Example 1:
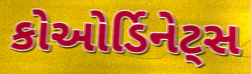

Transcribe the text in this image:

કોઓર્ડિનેટ્સ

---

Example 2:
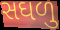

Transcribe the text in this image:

સઘળુ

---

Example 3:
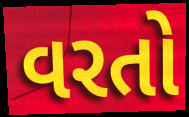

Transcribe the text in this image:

વરતો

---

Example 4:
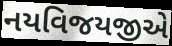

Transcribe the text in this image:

નયવિજયજીએ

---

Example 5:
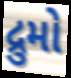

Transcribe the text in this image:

દ્રુમો